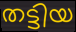
തട്ടിയ